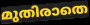
മുതിരാതെ